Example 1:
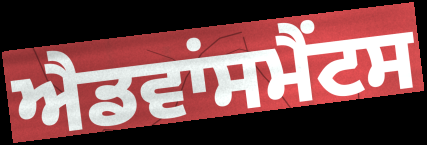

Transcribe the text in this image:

ਐਡਵਾਂਸਮੈਂਟਸ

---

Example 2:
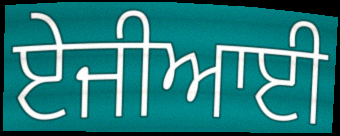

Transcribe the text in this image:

ਏਜੀਆਈ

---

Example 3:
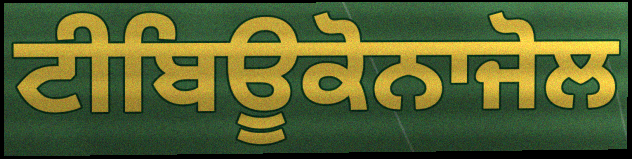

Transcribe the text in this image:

ਟੀਬਿਊਕੋਨਾਜੋਲ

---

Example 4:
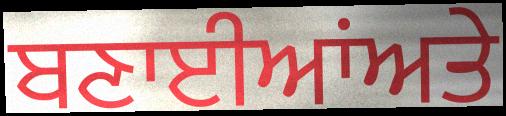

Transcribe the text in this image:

ਬਣਾਈਆਂਅਤੇ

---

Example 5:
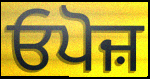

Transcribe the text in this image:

ਓਪੋਜ਼